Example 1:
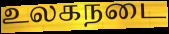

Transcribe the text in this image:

உலகநடை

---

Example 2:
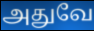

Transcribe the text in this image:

அதுவே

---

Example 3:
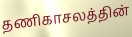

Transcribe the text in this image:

தணிகாசலத்தின்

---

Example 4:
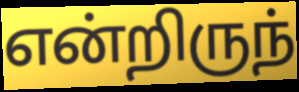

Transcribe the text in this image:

என்றிருந்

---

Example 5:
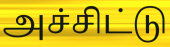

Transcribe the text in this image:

அச்சிட்டு